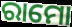
ରାମୋ